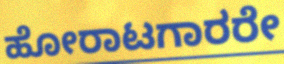
ಹೋರಾಟಗಾರರೇ